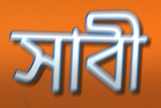
সাবী